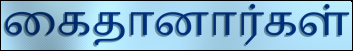
கைதானார்கள்